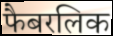
फैबरलिक